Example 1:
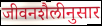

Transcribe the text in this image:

जीवनशैलीनुसार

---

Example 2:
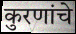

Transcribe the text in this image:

कुरणांचे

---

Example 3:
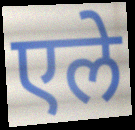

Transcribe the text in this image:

एले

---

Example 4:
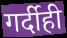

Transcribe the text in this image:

गर्दीही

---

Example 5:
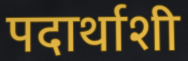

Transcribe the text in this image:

पदार्थाशी